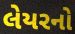
લેયરનો